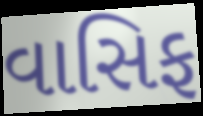
વાસિફ